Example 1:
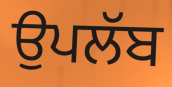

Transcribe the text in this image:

ਉਪਲੱਬ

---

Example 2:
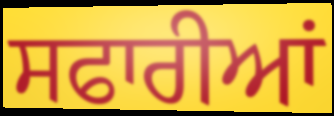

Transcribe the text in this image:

ਸਫਾਰੀਆਂ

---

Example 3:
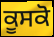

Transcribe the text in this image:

ਕੂਸਕੋ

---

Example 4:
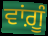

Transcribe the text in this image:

ਵਾਂਗ਼ੂੰ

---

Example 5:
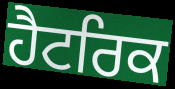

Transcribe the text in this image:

ਹੈਟਰਿਕ